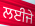
ਲਈਜੇ